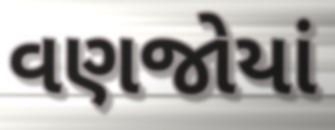
વણજોયાં